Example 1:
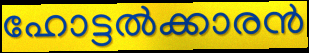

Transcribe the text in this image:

ഹോട്ടൽക്കാരൻ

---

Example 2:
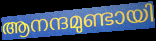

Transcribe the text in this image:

ആനന്ദമുണ്ടായി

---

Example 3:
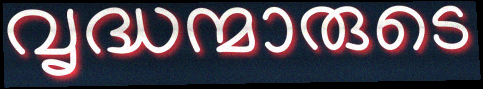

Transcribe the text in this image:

വൃദ്ധന്മാരുടെ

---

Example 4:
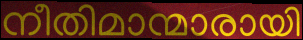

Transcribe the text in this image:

നീതിമാന്മാരായി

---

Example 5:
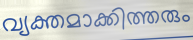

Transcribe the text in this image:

വ്യക്തമാക്കിത്തരും